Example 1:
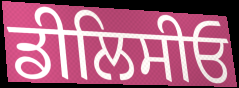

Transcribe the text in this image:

ਡੀਲਿਸੀਓ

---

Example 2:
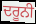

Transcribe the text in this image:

ਦਰੂਨੀ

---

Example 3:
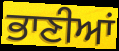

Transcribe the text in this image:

ਭਾਣੀਆਂ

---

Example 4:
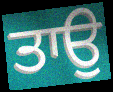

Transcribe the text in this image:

ਤਾਉ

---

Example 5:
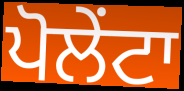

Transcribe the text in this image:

ਪੋਲੇਂਟਾ